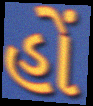
હોં